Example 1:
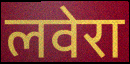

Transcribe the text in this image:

लवेरा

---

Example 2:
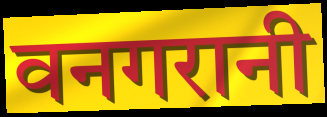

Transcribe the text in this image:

वनगरानी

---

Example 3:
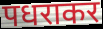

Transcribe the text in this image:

पधराकर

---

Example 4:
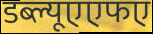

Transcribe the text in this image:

डब्ल्यूएएफए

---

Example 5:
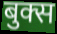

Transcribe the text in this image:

बुक्‍स